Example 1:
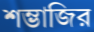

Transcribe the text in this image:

শম্ভাজির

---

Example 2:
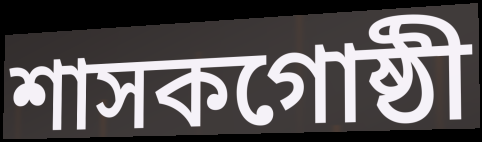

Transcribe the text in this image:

শাসকগোষ্ঠী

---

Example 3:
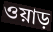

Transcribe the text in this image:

ওয়াড়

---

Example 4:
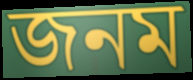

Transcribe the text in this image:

জনম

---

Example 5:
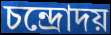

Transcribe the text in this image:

চন্দ্রোদয়